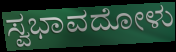
ಸ್ವಭಾವದೋಳು